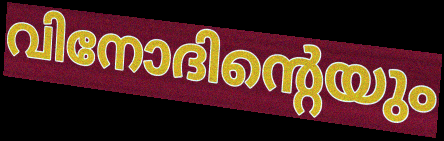
വിനോദിന്റെയും